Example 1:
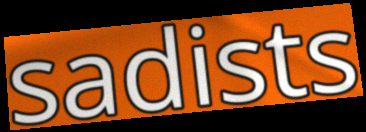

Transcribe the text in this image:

sadists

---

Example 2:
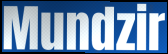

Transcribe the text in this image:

Mundzir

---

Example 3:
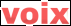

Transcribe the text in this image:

voix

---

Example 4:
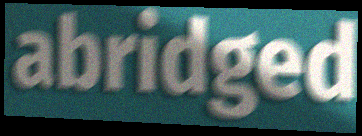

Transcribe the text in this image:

abridged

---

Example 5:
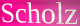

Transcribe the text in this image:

Scholz